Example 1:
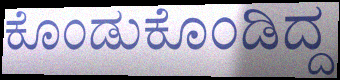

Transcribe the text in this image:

ಕೊಂಡುಕೊಂಡಿದ್ದ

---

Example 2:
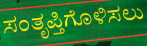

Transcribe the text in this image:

ಸಂತೃಪ್ತಿಗೊಳಿಸಲು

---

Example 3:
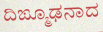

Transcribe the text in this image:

ದಿಙ್ಮೂಢನಾದ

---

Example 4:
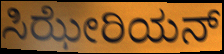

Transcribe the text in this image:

ಸಿಝೇರಿಯನ್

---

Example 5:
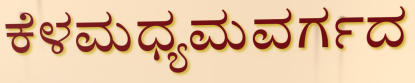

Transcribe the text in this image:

ಕೆಳಮಧ್ಯಮವರ್ಗದ